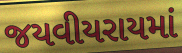
જયવીયરાયમાં